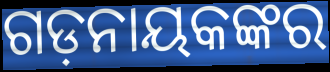
ଗଡ଼ନାୟକଙ୍କର